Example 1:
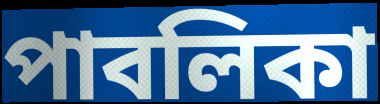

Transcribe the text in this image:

পাবলিকা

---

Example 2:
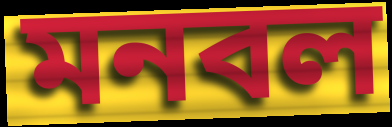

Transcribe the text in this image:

মনবল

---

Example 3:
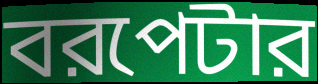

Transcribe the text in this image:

বরপেটার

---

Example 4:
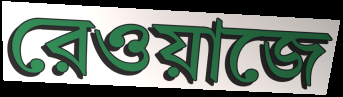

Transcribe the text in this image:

রেওয়াজে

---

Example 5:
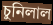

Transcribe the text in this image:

চুনিলাল